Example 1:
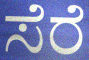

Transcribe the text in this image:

ಸೆರೆ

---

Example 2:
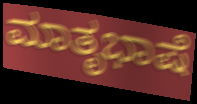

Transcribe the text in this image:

ಮಾತೃಭಾಷೆ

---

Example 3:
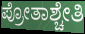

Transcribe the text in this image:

ಪ್ರೋತಾಶ್ಚೇತಿ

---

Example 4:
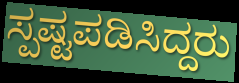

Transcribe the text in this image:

ಸ್ಪಷ್ಟಪಡಿಸಿದ್ದರು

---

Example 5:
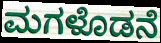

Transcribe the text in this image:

ಮಗಳೊಡನೆ